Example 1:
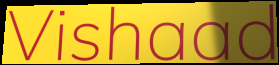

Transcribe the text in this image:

Vishaad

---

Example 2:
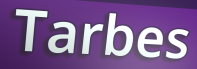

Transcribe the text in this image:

Tarbes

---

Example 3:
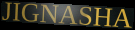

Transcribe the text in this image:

JIGNASHA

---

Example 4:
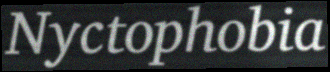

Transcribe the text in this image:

Nyctophobia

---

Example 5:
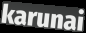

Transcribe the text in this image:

karunai